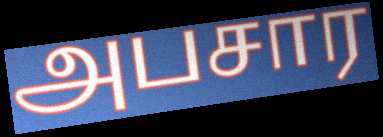
அபசார